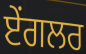
ਏਂਗਲਰ